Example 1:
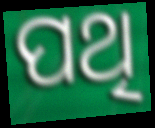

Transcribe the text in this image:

ପଥି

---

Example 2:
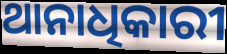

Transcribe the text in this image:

ଥାନାଧିକାରୀ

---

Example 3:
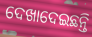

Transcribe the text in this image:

ଦେଖାଦେଇଛନ୍ତି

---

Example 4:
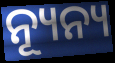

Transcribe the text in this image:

ନ୍ୟୂନ୍ୟ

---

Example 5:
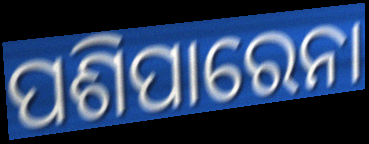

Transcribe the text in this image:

ପଶିପାରେନା